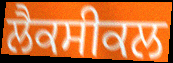
ਲੈਕਸੀਕਲ